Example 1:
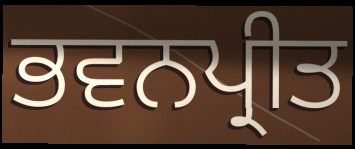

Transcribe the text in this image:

ਭਵਨਪ੍ਰੀਤ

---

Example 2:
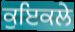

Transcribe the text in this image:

ਕੁਇਕਲੇ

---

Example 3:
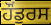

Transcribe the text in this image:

ਹੌਂਡੁਰਸ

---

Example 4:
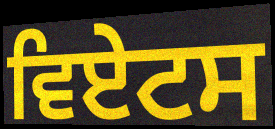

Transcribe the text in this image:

ਵਿਏਟਸ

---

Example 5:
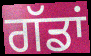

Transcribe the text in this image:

ਗੱਡਾਂ